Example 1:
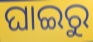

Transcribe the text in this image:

ଘାଇରୁ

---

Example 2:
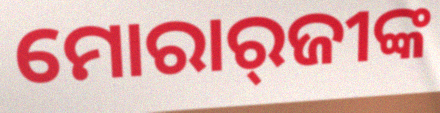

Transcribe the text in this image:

ମୋରାର୍‌ଜୀଙ୍କ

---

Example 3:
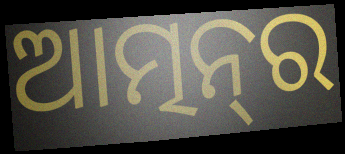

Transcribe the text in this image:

ଆତ୍ମନ୍‌ର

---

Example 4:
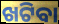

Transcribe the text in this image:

ଖଟିବା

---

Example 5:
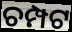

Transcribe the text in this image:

ଚମ୍ପଟ